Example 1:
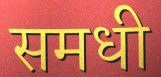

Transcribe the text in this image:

समधी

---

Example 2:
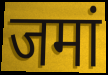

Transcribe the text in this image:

जमां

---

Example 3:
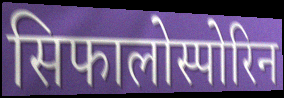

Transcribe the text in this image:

सिफालोस्पोरिन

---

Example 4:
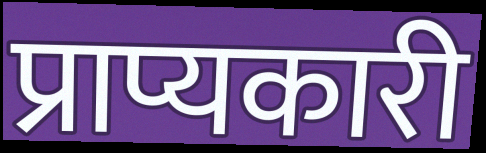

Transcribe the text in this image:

प्राप्यकारी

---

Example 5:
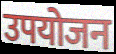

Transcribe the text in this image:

उपयोजन